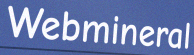
Webmineral